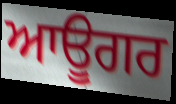
ਆਊਗਰ